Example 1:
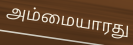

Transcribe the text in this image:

அம்மையாரது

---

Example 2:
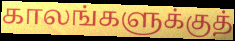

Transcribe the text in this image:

காலங்களுக்குத்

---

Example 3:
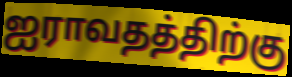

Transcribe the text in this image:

ஐராவதத்திற்கு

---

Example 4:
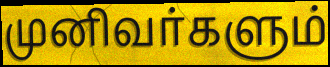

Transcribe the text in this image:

முனிவர்களும்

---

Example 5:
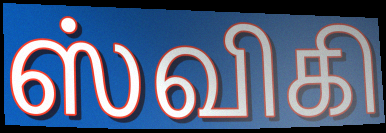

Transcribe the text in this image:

ஸ்விகி